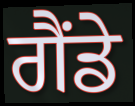
ਗੈਂਡੇ